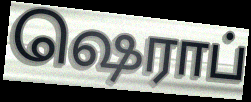
ஷெராப்